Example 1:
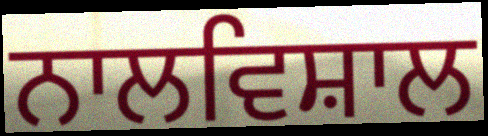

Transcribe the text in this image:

ਨਾਲਵਿਸ਼ਾਲ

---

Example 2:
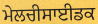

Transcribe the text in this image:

ਮੇਲਚੀਸਾਈਡਕ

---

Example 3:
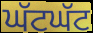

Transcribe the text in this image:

ਘੱਟਘੱਟ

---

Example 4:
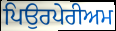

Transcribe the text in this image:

ਪਿਉਰਪੇਰੀਅਮ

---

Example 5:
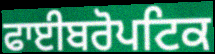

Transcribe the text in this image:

ਫਾਈਬਰੋਪਟਿਕ